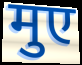
मुए